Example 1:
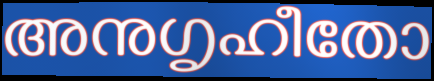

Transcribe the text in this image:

അനുഗൃഹീതോ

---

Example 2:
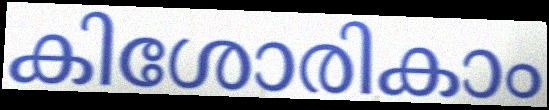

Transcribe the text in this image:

കിശോരികാം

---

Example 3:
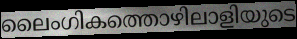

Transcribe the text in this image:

ലൈംഗികത്തൊഴിലാളിയുടെ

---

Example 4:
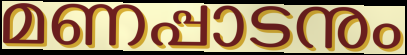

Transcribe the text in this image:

മണപ്പാടനും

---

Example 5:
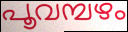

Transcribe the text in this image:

പൂവമ്പഴം